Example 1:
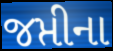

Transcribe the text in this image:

જપ્તીના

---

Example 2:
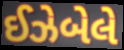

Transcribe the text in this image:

ઈઝેબેલે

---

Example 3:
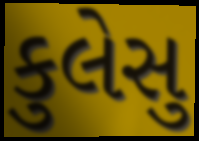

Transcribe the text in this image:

કુલેસુ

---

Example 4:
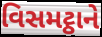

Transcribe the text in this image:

વિસમટ્ઠાને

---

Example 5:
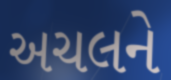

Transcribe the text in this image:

અચલને